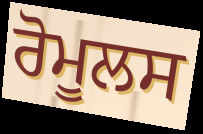
ਰੋਮੂਲਸ